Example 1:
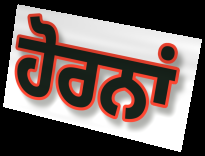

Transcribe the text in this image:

ਹੋਰਨਾਂ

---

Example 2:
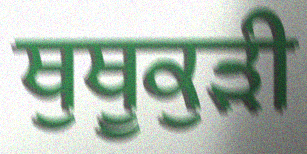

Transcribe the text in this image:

ਥੁਥੂਕੁੜੀ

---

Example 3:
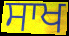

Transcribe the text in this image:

ਸਾਖ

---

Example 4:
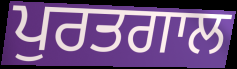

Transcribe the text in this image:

ਪੁਰਤਗਾਲ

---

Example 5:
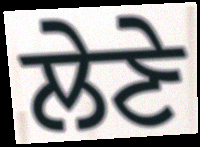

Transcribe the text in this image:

ਲੇਣੇ